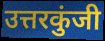
उत्तरकुंजी